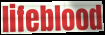
lifeblood